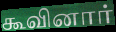
கூவினார்